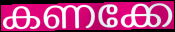
കണക്കേ